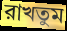
রাখতুম